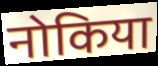
नोकिया